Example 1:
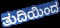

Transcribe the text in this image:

ತುದಿಯಿಂದ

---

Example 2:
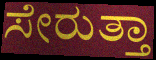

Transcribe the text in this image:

ಸೇರುತ್ತಾ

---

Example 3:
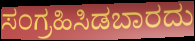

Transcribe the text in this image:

ಸಂಗ್ರಹಿಸಿಡಬಾರದು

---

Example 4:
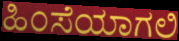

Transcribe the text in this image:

ಹಿಂಸೆಯಾಗಲಿ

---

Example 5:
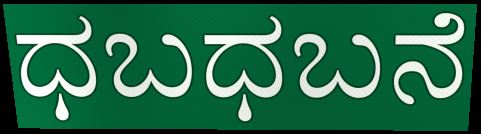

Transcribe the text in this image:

ಧಬಧಬನೆ